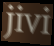
jivi